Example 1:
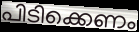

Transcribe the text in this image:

പിടിക്കെണം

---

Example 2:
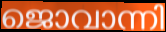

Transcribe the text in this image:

ജൊവാന്നി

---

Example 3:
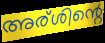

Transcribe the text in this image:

അര്ശിന്റെ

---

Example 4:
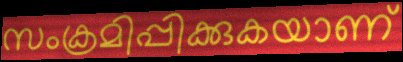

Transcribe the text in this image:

സംക്രമിപ്പിക്കുകയാണ്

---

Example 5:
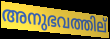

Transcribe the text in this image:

അനുഭവത്തില്